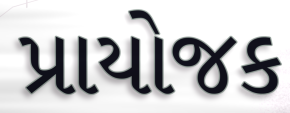
પ્રાયોજક